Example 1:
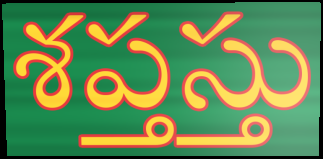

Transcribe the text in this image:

శప్తస్తు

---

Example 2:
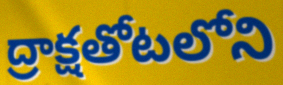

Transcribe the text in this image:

ద్రాక్షతోటలోని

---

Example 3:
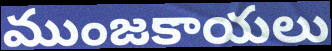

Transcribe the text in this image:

ముంజకాయలు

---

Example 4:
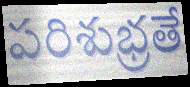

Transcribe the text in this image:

పరిశుభ్రతే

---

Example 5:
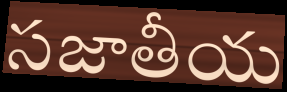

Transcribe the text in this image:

సజాతీయ